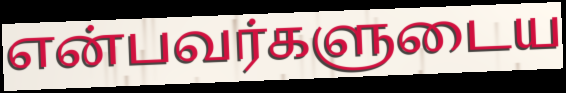
என்பவர்களுடைய